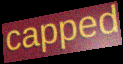
capped